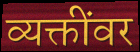
व्यक्तींवर